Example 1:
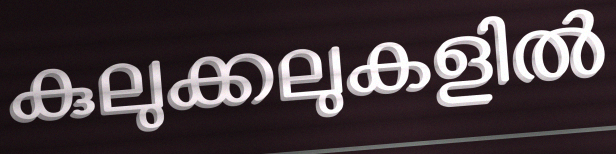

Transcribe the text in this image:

കുലുക്കലുകളിൽ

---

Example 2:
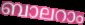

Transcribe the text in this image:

ബാലറാം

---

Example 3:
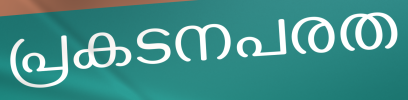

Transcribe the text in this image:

പ്രകടനപരത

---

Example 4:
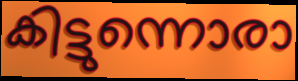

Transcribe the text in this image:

കിട്ടുന്നൊരാ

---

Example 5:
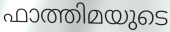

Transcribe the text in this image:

ഫാത്തിമയുടെ